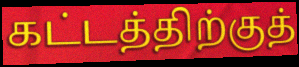
கட்டத்திற்குத்